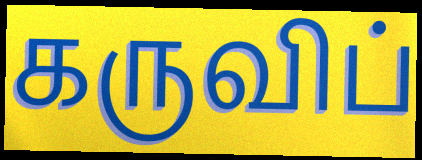
கருவிப்